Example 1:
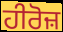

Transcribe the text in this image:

ਹੀਰੋਜ਼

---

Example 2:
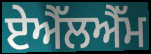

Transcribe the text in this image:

ਏਐੱਲਐੱਮ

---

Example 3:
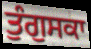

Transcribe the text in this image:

ਤੁੰਗੁਸਕਾ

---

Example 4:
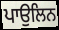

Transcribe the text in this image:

ਪਾਉਲਿਨ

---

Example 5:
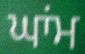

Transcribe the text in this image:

ਘਾਂਮ